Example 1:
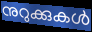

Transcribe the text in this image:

നുറുക്കുകൾ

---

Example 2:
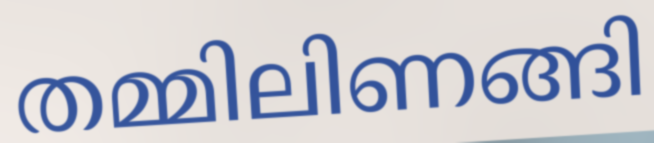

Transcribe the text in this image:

തമ്മിലിണങ്ങി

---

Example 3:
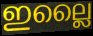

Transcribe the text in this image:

ഇല്ലൈ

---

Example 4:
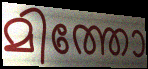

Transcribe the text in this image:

മിത്തോ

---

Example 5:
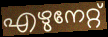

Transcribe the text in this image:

എഴുനേറ്റ്